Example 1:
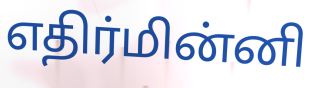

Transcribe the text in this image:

எதிர்மின்னி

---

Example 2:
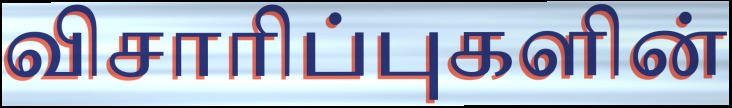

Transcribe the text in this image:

விசாரிப்புகளின்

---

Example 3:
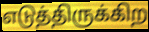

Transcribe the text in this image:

எடுத்திருக்கிற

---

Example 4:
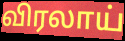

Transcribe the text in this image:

விரலாய்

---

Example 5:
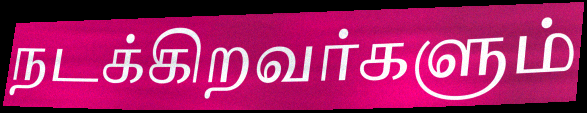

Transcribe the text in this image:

நடக்கிறவர்களும்